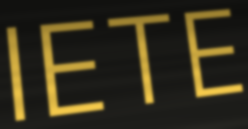
IETE